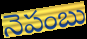
నెపంబు